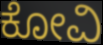
ಕೋವಿ